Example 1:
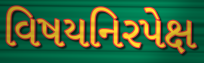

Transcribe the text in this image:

વિષયનિરપેક્ષ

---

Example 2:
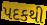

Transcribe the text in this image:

પદકથી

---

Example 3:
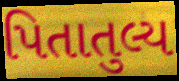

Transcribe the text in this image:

પિતાતુલ્ય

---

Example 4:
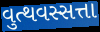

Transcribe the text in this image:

વુત્થવસ્સત્તા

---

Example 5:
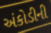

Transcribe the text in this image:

અંકોડીની